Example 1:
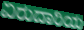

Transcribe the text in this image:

ಏರುದಾರಿಯ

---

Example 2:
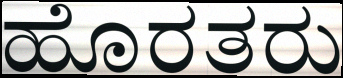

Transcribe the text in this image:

ಹೊರತರು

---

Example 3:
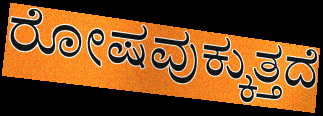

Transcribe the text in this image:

ರೋಷವುಕ್ಕುತ್ತದೆ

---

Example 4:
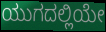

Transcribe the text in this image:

ಯುಗದಲ್ಲಿಯೇ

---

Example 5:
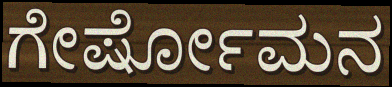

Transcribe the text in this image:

ಗೇರ್ಷೋಮನ